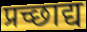
प्रच्छाद्य